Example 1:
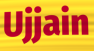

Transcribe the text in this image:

Ujjain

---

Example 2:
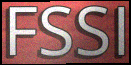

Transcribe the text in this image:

FSSI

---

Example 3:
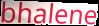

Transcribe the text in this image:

bhalene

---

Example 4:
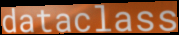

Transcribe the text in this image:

dataclass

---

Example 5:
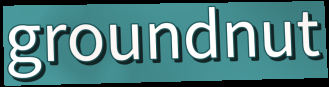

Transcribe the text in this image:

groundnut